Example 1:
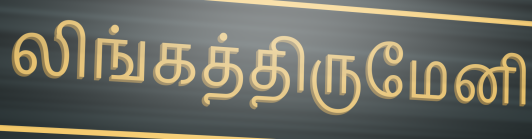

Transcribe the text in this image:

லிங்கத்திருமேனி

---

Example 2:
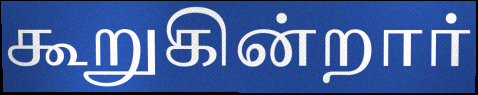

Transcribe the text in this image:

கூறுகின்றார்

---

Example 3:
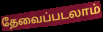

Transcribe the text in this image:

தேவைப்படலாம்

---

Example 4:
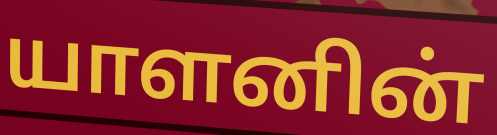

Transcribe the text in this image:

யாளனின்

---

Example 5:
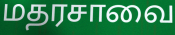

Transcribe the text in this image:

மதரசாவை